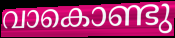
വാകൊണ്ടു